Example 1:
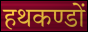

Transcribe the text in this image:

हथकण्डों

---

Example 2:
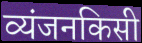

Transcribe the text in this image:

व्यंजनकिसी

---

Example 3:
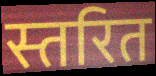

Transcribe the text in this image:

स्तरित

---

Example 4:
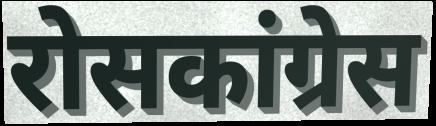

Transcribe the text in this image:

रोसकांग्रेस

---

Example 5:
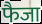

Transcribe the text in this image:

फैजा